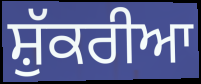
ਸ਼ੁੱਕਰੀਆ